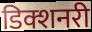
डिक्‍शनरी